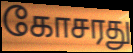
கோசரது